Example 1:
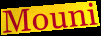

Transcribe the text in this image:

Mouni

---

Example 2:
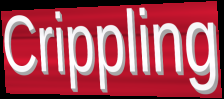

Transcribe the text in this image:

Crippling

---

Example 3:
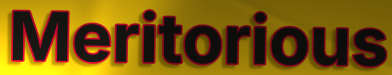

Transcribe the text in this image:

Meritorious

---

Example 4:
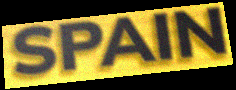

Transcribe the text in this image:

SPAIN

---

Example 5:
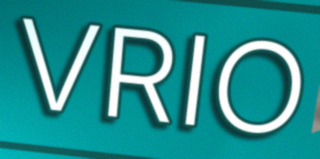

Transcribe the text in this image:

VRIO